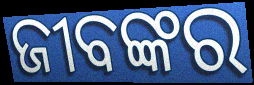
ଜୀବଙ୍କର